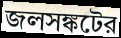
জলসঙ্কটের